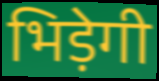
भिड़ेगी